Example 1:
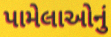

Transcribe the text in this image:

પામેલાઓનું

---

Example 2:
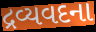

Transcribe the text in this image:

દ્રવ્યવદના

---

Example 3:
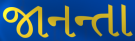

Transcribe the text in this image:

જાનન્તા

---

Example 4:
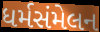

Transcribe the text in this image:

ધર્મસંમેલન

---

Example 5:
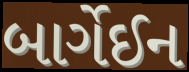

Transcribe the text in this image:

બાર્ગેઈન